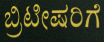
ಬ್ರಿಟೀಷರಿಗೆ